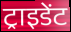
ट्राइडेंट